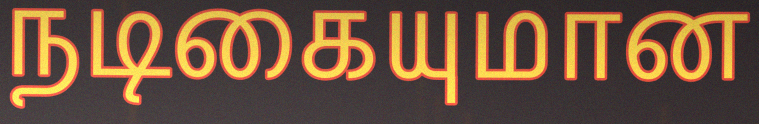
நடிகையுமான